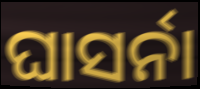
ଘାସର୍ନା